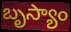
బృస్యాం